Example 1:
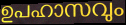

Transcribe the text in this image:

ഉപഹാസവും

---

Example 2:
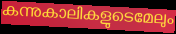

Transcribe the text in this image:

കന്നുകാലികളുടെമേലും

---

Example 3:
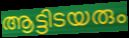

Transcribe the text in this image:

ആട്ടിടയരും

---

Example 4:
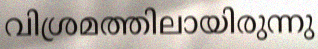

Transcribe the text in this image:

വിശ്രമത്തിലായിരുന്നു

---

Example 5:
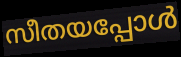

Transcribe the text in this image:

സീതയപ്പോൾ